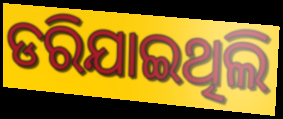
ଡରିଯାଇଥିଲି